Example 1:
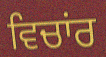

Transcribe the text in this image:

ਵਿਚਾਂਰ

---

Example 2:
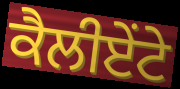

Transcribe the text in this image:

ਕੈਲੀਏਂਟੇ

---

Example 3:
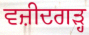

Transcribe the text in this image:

ਵਜ਼ੀਦਗੜ੍ਹ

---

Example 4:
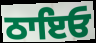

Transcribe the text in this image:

ਠਾਇਓ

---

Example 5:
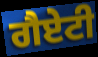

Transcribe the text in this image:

ਗੈਏਟੀ